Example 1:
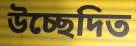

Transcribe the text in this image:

উচ্ছেদিত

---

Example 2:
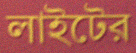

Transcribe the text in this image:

লাইটের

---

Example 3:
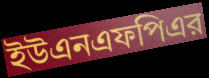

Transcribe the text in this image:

ইউএনএফপিএর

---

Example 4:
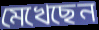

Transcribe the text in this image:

মেখেছেন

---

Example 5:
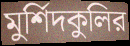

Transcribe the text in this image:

মুর্শিদকুলির